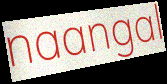
naangal